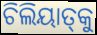
ଚିଲିୟାତ୍‍କୁ